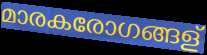
മാരകരോഗങ്ങള്